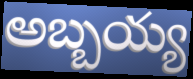
అబ్బయ్య